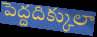
పెద్దదిక్కులా